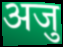
अजु